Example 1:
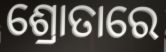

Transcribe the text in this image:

ଶ୍ରୋତାରେ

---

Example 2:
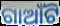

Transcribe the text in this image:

ଗାଆଁଟି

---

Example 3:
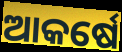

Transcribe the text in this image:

ଆକର୍ଷେ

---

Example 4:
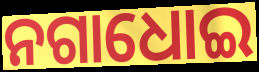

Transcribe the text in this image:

ନଗାଧୋଇ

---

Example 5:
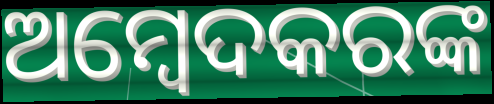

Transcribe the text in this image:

ଅମ୍ବେଦକରଙ୍କ